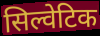
सिल्वेटिक